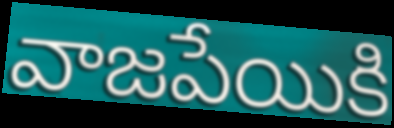
వాజపేయికి